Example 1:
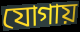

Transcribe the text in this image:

যোগায়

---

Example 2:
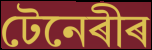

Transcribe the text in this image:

টেনেৰীৰ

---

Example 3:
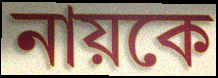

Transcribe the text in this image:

নায়কে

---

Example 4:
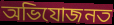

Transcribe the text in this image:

অভিযোজনত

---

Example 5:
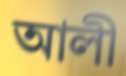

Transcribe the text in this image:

আলী